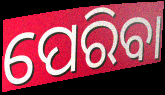
ପେରିବା